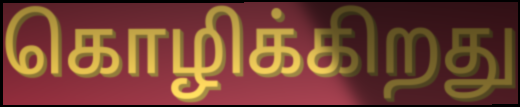
கொழிக்கிறது